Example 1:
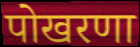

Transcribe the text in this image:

पोखरणा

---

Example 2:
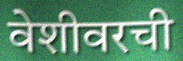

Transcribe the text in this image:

वेशीवरची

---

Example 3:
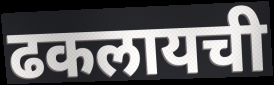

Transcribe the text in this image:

ढकलायची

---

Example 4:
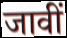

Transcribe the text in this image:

जावीं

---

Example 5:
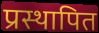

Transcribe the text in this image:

प्रस्थापित